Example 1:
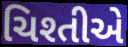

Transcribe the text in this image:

ચિશ્તીએ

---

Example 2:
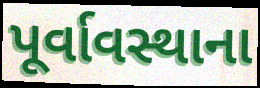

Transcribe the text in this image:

પૂર્વાવસ્થાના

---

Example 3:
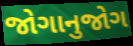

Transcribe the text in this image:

જોગાનુજોગ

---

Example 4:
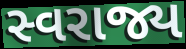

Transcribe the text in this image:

સ્વરાજ્ય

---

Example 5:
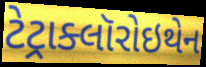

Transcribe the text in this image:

ટેટ્રાક્લૉરોઇથેન